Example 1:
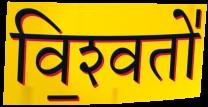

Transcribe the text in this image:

वि॒श्वतो॑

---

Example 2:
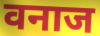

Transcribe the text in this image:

वनाज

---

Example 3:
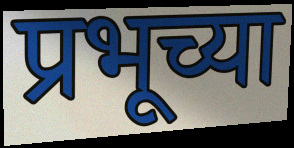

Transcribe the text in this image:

प्रभूच्या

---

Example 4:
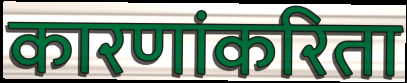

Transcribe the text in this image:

कारणांकरिता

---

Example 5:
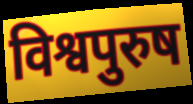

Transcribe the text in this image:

विश्वपुरुष